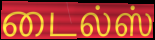
டைல்ஸ்